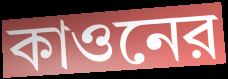
কাওনের